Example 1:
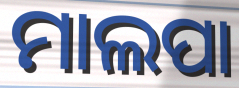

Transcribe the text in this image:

ମାଲପା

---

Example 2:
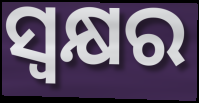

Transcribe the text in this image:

ସ୍ୱକ୍ଷର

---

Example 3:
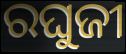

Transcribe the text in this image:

ରଘୁଜୀ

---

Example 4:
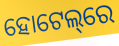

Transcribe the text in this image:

ହୋଟେଲ୍‌ରେ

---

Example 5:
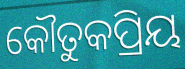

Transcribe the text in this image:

କୌତୁକପ୍ରିୟ